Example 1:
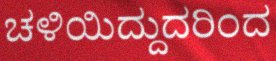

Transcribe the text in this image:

ಚಳಿಯಿದ್ದುದರಿಂದ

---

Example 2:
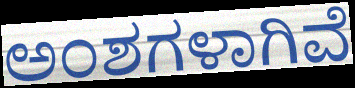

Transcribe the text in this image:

ಅಂಶಗಳಾಗಿವೆ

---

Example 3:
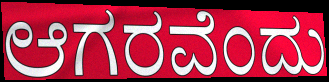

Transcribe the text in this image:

ಆಗರವೆಂದು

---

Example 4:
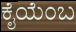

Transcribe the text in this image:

ಕೈಯೆಂಬ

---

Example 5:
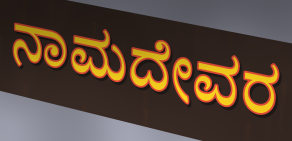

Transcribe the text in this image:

ನಾಮದೇವರ